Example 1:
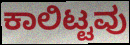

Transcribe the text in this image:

ಕಾಲಿಟ್ಟವು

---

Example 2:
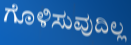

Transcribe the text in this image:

ಗೊಳಿಸುವುದಿಲ್ಲ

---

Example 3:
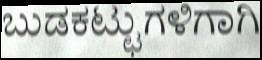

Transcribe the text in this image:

ಬುಡಕಟ್ಟುಗಳಿಗಾಗಿ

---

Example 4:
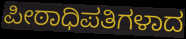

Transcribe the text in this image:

ಪೀಠಾಧಿಪತಿಗಳಾದ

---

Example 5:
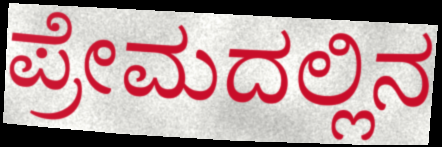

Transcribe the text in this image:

ಪ್ರೇಮದಲ್ಲಿನ